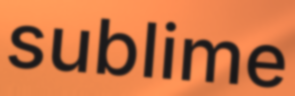
sublime